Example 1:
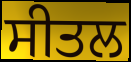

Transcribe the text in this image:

ਸੀਤਲ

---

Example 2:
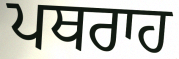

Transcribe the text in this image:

ਪਥਰਾਹ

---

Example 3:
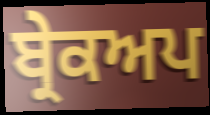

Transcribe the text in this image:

ਬ੍ਰੇਕਅਪ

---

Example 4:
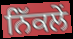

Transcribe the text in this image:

ਨਿੱਕਲੇਂ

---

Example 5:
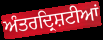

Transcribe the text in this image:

ਅੰਤਰਦ੍ਰਿਸ਼ਟੀਆਂ